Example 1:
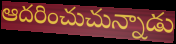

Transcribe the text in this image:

ఆదరించుచున్నాడు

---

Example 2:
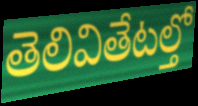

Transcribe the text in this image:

తెలివితేటల్తో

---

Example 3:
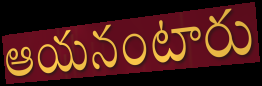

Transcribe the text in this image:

ఆయనంటారు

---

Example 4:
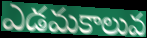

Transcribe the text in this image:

ఎడమకాలువ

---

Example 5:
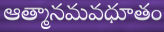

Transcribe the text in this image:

ఆత్మానమవధూతం